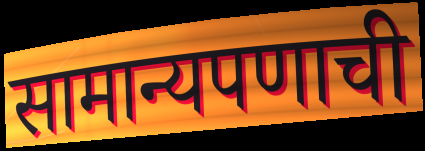
सामान्यपणाची